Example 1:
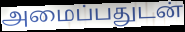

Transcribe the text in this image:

அமைப்பதுடன்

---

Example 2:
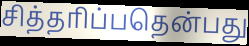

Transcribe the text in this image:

சித்தரிப்பதென்பது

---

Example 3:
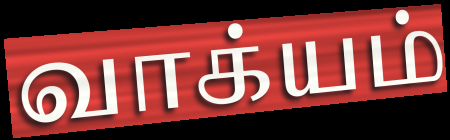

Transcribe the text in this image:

வாக்யம்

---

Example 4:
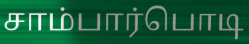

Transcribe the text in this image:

சாம்பார்பொடி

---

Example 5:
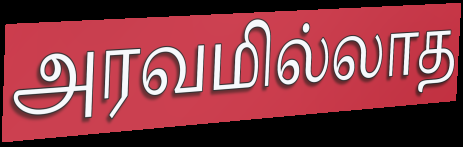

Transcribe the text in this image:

அரவமில்லாத